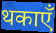
थकाएँ